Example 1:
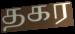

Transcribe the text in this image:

தகர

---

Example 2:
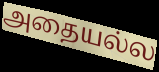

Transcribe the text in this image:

அதையல்ல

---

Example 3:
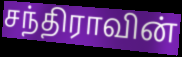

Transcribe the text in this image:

சந்திராவின்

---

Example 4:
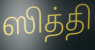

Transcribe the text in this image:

ஸித்தி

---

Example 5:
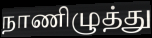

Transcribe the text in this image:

நாணிழுத்து